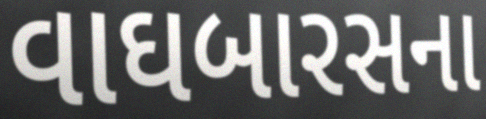
વાઘબારસના